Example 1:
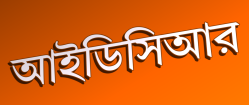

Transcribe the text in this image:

আইডিসিআর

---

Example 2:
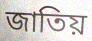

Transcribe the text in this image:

জাতিয়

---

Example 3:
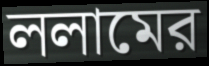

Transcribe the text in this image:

ললামের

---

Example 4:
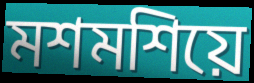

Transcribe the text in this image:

মশমশিয়ে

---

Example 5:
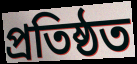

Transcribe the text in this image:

প্রতিষ্ঠত